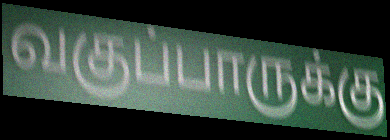
வகுப்பாருக்கு